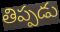
తిప్పడు